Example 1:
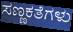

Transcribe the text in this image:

ಸಣ್ಣಕತೆಗಳು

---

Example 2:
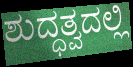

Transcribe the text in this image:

ಶುದ್ಧತ್ವದಲ್ಲಿ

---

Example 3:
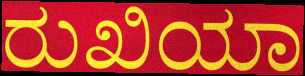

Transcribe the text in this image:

ರುಖಿಯಾ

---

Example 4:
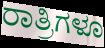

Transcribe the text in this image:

ರಾತ್ರಿಗಳೂ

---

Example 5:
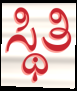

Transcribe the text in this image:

ಸ್ಥಿತಿ